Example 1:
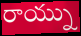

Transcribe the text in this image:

రాయ్ను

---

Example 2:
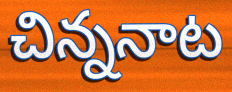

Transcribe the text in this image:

చిన్ననాట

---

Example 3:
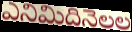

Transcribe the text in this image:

ఎనిమిదినెలల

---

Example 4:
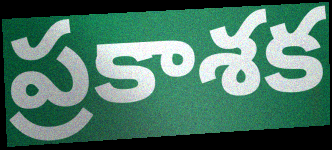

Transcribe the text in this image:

ప్రకాశక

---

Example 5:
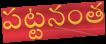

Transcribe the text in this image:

పట్టనంత